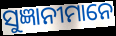
ସୁଜ୍ଞାନୀମାନେ